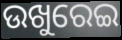
ଉଖୁରେଇ